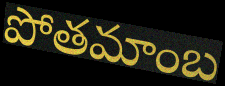
పోతమాంబ